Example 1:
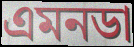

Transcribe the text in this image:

এমনডা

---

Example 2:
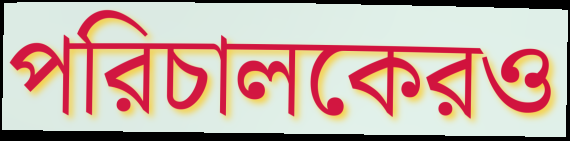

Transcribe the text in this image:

পরিচালকেরও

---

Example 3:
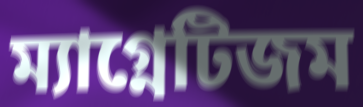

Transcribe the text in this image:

ম্যাগ্নেটিজম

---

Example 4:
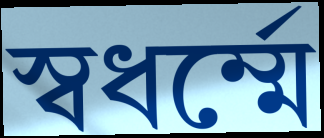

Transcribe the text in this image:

স্বধর্ম্মে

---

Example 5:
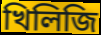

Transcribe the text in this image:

খিলিজি